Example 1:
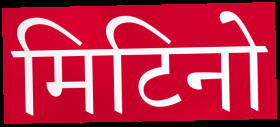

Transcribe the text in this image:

मिटिनो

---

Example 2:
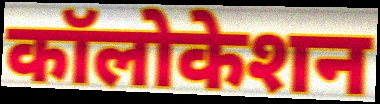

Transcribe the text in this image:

कॉलोकेशन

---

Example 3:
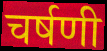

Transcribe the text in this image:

चर्षणी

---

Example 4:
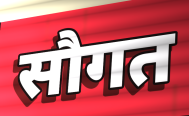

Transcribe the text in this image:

सौगत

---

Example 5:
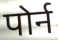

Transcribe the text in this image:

पोर्न